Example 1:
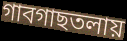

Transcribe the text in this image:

গাবগাছতলায়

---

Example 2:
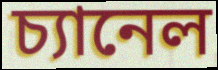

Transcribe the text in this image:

চ্যানেল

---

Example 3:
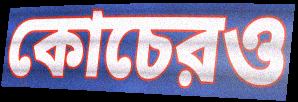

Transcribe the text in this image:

কোচেরও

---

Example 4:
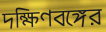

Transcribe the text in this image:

দক্ষিণবঙ্গের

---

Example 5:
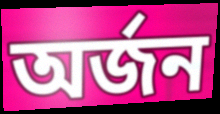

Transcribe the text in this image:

অর্জন